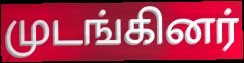
முடங்கினர்